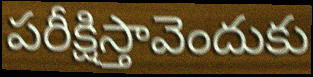
పరీక్షిస్తావెందుకు